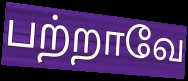
பற்றாவே